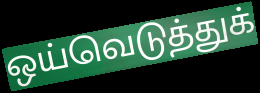
ஒய்வெடுத்துக்